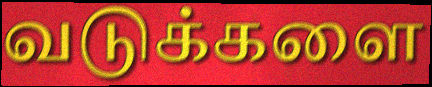
வடுக்களை